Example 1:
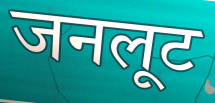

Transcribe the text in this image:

जनलूट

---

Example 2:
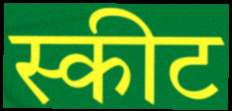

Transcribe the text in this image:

स्‍कीट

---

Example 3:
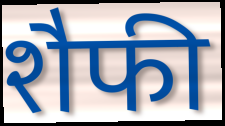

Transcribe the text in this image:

शैफी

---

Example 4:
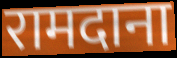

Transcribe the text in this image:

रामदाना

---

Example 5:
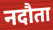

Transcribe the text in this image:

नदौता